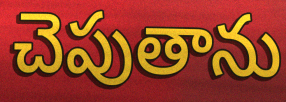
చెపుతాను